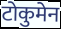
टोकुमेन